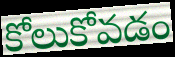
కోలుకోవడం